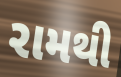
રામથી